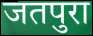
जतपुरा